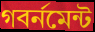
গবর্নমেন্ট